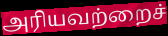
அரியவற்றைச்